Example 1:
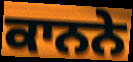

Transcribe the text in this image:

ਕਾਨਨੇ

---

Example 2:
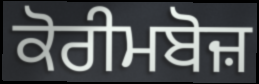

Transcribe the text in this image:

ਕੋਰੀਮਬੋਜ਼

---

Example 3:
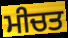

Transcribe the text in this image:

ਮੀਚਤ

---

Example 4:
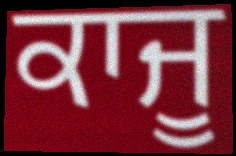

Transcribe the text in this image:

ਕਾਜੂ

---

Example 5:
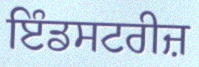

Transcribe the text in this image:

ਇੰਡਸਟਰੀਜ਼